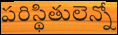
పరిస్థితులెన్నో